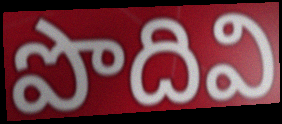
పొదివి